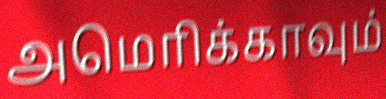
அமெரிக்காவும்